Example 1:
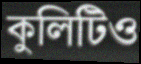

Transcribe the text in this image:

কুলিটিও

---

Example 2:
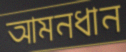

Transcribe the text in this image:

আমনধান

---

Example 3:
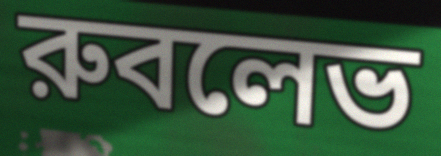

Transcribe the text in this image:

রুবলেভ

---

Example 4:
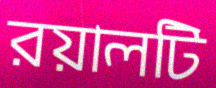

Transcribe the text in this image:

রয়ালটি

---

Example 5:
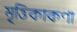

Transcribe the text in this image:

মৃত্তিকাকণা